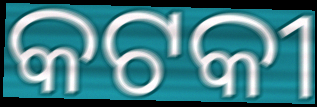
କଟକୀ